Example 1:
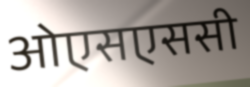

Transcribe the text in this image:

ओएसएससी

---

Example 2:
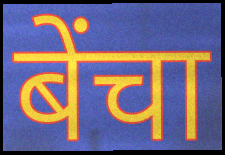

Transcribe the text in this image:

बेंचा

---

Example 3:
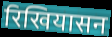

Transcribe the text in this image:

रिखियासन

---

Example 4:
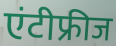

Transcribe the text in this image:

एंटीफ्रीज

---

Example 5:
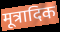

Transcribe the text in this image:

मूत्रादिक